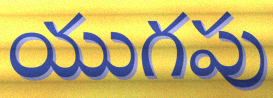
యుగపు